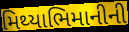
મિથ્યાભિમાનીની